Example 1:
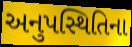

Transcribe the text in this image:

અનુપસ્થિતિના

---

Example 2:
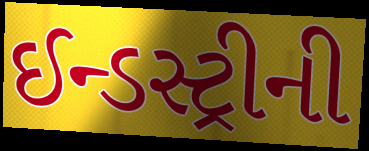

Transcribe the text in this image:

ઈન્ડસ્ટ્રીની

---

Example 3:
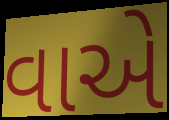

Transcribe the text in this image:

વાએ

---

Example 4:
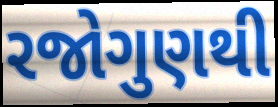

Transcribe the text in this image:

રજોગુણથી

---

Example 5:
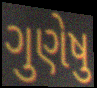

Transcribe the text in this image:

ગુણેષુ